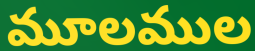
మూలముల